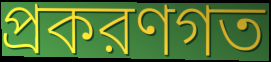
প্রকরণগত